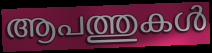
ആപത്തുകൾ